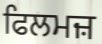
ਫਿਲਮਜ਼